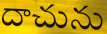
దాచును